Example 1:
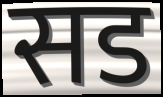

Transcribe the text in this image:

सड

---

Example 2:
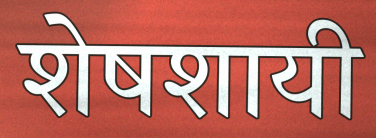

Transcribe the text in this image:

शेषशायी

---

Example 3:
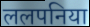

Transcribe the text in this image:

ललपनिया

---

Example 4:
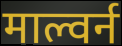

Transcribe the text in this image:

माल्वर्न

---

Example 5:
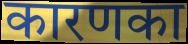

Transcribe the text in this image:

कारणका